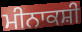
ਮੀਨਾਕਸ਼ੀ